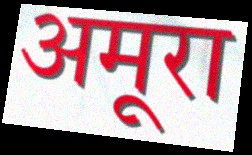
अमूरा